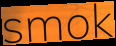
smok